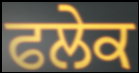
ਫਲੇਕ